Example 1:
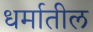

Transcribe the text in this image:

धर्मातील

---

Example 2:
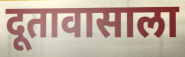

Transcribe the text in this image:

दूतावासाला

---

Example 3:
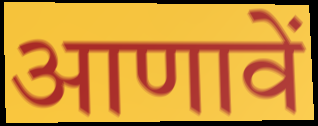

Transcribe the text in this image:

आणावें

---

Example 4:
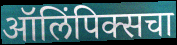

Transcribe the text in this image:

ऑलिंपिक्सचा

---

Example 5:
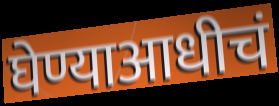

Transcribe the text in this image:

घेण्याआधीचं